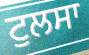
ਟੁਲਸਾ